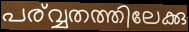
പര്വ്വതത്തിലേക്കു